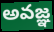
అవజ్ఞ